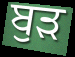
ਬੁੜ